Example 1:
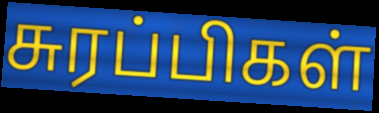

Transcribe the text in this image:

சுரப்பிகள்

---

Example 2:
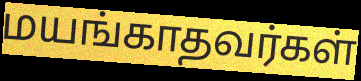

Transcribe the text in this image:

மயங்காதவர்கள்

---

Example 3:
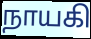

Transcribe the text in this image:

நாயகி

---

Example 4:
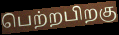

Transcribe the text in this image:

பெற்றபிறகு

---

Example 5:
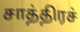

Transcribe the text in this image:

சாத்திரச்